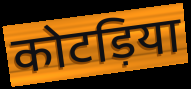
कोटड़िया